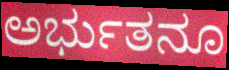
ಅರ್ಭುತನೂ